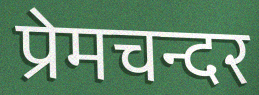
प्रेमचन्दर